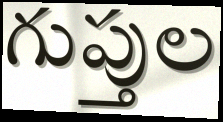
గుప్తుల